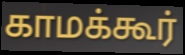
காமக்கூர்